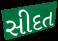
સીદત